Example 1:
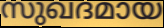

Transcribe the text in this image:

സുഖദമായ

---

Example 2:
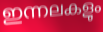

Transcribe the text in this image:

ഇന്നലകളും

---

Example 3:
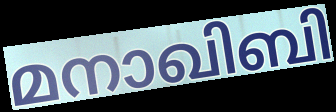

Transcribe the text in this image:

മനാഖിബി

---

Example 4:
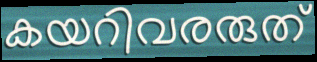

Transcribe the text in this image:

കയറിവരരുത്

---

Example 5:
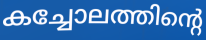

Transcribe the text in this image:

കച്ചോലത്തിന്റെ